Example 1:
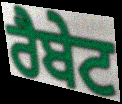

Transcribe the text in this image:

ਰੈਬੇਟ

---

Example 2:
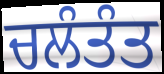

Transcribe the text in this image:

ਚਲੰਤੰਤ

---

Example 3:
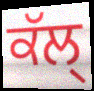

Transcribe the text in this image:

ਕੱਲ੍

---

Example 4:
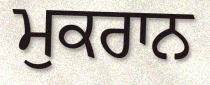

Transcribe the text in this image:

ਮੁਕਰਾਨ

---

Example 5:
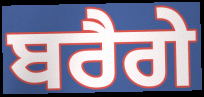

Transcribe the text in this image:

ਬਰੈਗੇ